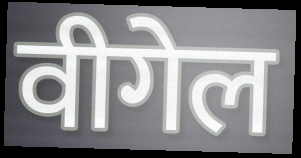
वीगेल